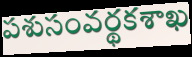
పశుసంవర్థకశాఖ